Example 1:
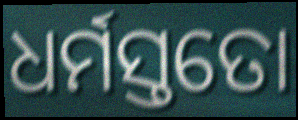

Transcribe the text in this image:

ଧର୍ମସ୍ତତୋ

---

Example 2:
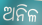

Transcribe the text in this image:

ଅନିଳ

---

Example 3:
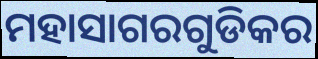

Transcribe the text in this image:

ମହାସାଗରଗୁଡିକର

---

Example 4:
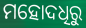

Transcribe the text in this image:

ମହୋଦଧିରୁ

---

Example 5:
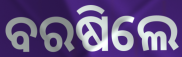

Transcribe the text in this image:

ବରଷିଲେ